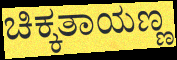
ಚಿಕ್ಕತಾಯಣ್ಣ